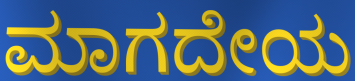
ಮಾಗದೇಯ